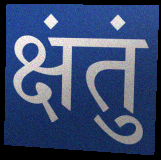
क्षंतुं